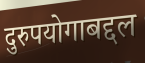
दुरुपयोगाबद्दल